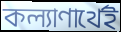
কল্যাণার্থেই